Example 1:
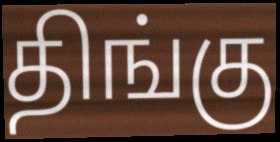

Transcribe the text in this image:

திங்கு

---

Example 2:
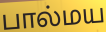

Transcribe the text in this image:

பால்மய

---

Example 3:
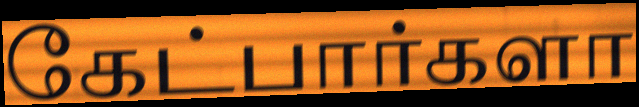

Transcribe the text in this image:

கேட்பார்களா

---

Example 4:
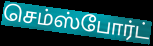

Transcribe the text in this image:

செம்ஸ்போர்ட்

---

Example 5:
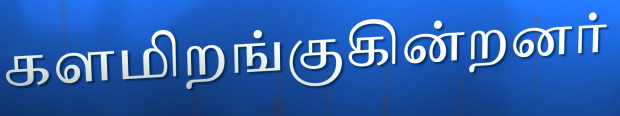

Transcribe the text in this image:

களமிறங்குகின்றனர்